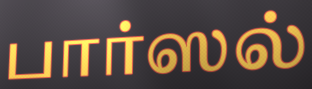
பார்ஸல்